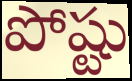
పోష్టు